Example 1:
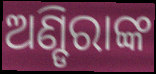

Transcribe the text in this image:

ଅଣ୍ଡିରାଙ୍କ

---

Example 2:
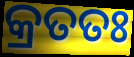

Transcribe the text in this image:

କ୍ରତତଃ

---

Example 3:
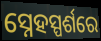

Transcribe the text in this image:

ସ୍ନେହସ୍ପର୍ଶରେ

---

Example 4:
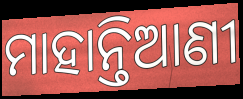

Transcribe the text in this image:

ମାହାନ୍ତିଆଣୀ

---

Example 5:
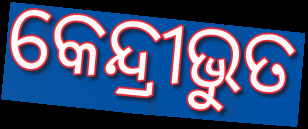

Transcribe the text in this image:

କେନ୍ଦ୍ରୀଭୁତ